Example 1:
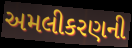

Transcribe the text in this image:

અમલીકરણની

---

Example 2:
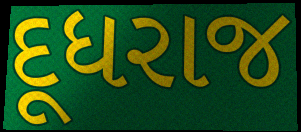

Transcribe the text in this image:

દૂધરાજ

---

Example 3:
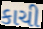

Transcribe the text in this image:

કાચી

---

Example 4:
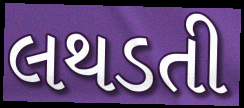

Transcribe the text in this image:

લથડતી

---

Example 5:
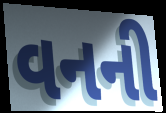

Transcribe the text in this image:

વનની